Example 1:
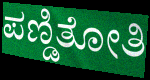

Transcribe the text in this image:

ಪಣ್ಡಿತೋತಿ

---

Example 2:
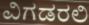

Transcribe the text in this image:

ವಿಗಡರಲಿ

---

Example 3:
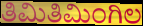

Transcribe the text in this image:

ತಿಮಿತಿಮಿಂಗಿಲ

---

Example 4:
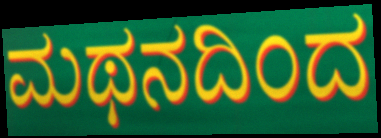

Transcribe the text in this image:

ಮಥನದಿಂದ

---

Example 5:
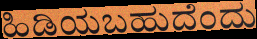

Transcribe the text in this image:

ಹಿಡಿಯಬಹುದೆಂದು